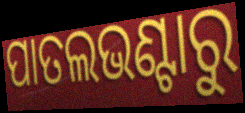
ପାତଲଭଣ୍ଟାରୁ